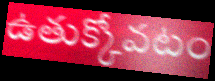
ఉతుక్కోవటం